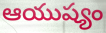
ఆయుష్యం